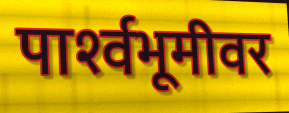
पार्श्वभूमीवर